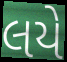
લયે